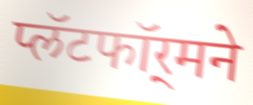
प्लॅटफॉर्मने